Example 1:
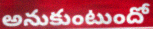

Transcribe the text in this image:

అనుకుంటుందో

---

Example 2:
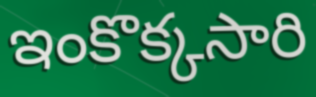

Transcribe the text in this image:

ఇంకొక్కసారి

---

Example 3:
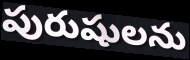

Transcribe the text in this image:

పురుషులను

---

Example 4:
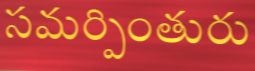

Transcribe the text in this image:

సమర్పింతురు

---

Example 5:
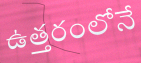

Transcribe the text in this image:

ఉత్తరంలోనే